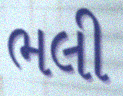
ભલી